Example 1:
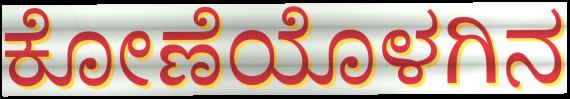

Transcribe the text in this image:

ಕೋಣೆಯೊಳಗಿನ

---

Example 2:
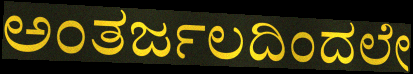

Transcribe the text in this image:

ಅಂತರ್ಜಲದಿಂದಲೇ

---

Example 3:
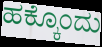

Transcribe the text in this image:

ಹಕ್ಕೊಂದು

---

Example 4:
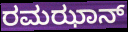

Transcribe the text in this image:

ರಮಝಾನ್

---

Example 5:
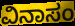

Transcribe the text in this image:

ವಿನಾಸಂ